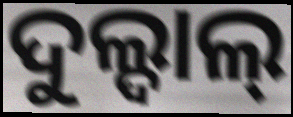
ଦୁଲ୍ଦାଲ୍